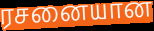
ரசனையான